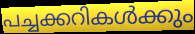
പച്ചക്കറികൾക്കും